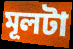
মূলটা